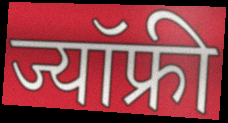
ज्यॉफ्री